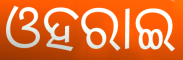
ଓହରାଇ